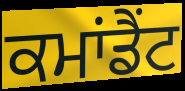
ਕਮਾਂਡੈਂਟ